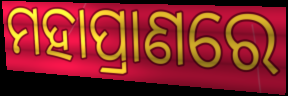
ମହାପ୍ରାଣରେ